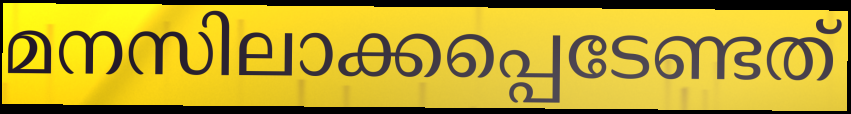
മനസിലാക്കപ്പെടേണ്ടത്